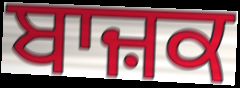
ਬਾਜ਼ਕ